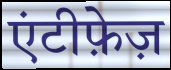
एंटीफ़ेज़